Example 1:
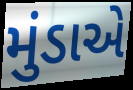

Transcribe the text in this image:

મુંડાએ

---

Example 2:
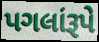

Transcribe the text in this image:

પગલાંરૂપે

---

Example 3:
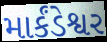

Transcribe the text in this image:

માર્કંડેશ્વર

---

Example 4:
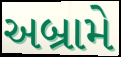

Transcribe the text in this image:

અબ્રામે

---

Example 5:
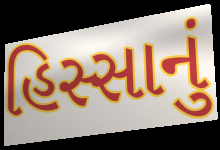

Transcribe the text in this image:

હિસ્સાનું